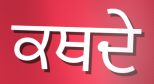
ਕਥਦੇ